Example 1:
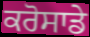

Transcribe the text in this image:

ਕਰੋਸਾਡੇ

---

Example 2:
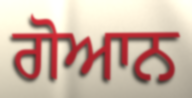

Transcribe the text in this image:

ਗੋਆਨ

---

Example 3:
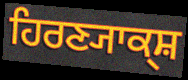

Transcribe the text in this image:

ਹਿਰਣ੍ਯਾਕ੍ਸ਼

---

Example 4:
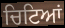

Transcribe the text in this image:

ਚਿਟਿਆਂ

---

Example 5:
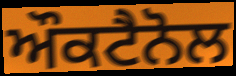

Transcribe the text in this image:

ਔਕਟੈਨੋਲ